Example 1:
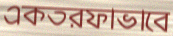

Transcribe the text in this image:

একতরফাভাবে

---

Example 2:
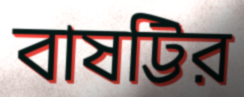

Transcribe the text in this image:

বাষট্টির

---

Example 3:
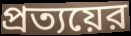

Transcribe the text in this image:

প্রত্যয়ের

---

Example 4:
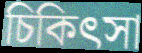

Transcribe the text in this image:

চিকিৎসা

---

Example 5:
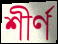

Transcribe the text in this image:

শীর্ণ